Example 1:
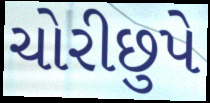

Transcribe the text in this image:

ચોરીછુપે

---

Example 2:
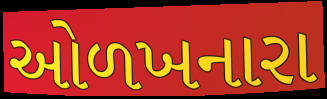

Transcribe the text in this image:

ઓળખનારા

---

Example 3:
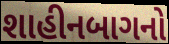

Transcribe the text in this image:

શાહીનબાગનો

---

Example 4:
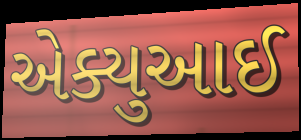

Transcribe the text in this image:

એક્યુઆઈ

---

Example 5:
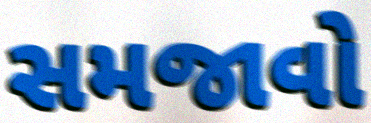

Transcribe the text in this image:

સમજાવો